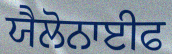
ਯੈਲੋਨਾਈਫ